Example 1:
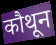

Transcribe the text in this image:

कौथून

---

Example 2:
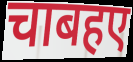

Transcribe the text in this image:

चाबहए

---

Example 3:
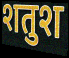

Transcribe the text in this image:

शतुश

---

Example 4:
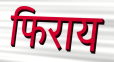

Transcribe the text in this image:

फिराय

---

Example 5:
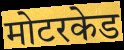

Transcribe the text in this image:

मोटरकेड